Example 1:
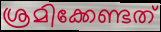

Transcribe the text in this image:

ശ്രമിക്കേണ്ടത്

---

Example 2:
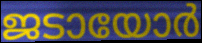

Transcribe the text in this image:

ജടായോർ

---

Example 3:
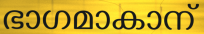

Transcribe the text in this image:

ഭാഗമാകാന്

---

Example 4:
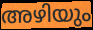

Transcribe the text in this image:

അഴിയും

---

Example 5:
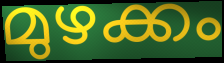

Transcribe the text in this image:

മുഴക്കം